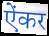
ऐंकर